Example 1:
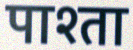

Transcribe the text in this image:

पाश्ता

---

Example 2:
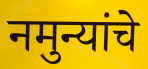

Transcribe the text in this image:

नमुन्यांचे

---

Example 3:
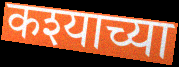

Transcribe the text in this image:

कश्याच्या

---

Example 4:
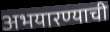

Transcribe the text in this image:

अभयारण्याची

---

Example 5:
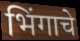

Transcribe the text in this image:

भिंगाचे